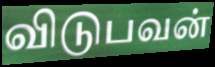
விடுபவன்